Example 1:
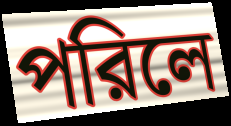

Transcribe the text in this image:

পরিলে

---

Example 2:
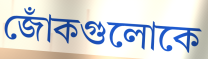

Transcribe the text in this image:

জোঁকগুলোকে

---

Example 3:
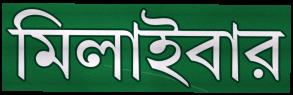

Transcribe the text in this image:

মিলাইবার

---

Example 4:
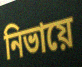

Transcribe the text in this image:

নিভায়ে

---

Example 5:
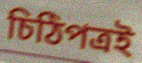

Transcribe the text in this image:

চিঠিপত্রই